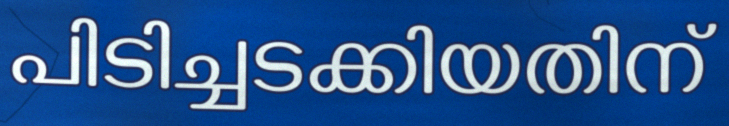
പിടിച്ചടക്കിയതിന്